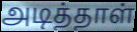
அடித்தாள்